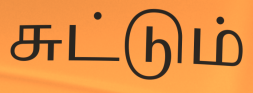
சுட்டும்